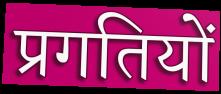
प्रगतियों